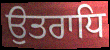
ਉਤਰਾਧਿ